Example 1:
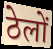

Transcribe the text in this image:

ठेलों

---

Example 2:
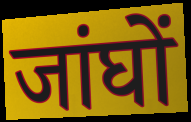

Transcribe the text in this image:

जांघों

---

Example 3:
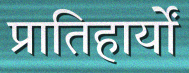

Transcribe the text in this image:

प्रातिहार्यों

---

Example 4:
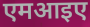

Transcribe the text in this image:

एमआइए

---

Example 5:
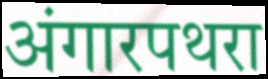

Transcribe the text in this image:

अंगारपथरा